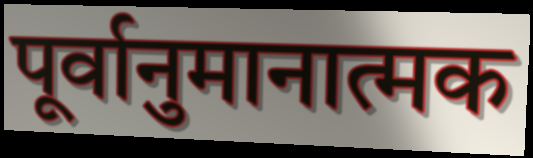
पूर्वानुमानात्मक